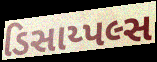
ડિસાય્પલ્સ